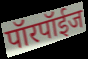
पॉरपॉईज